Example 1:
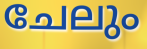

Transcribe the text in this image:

ചേലും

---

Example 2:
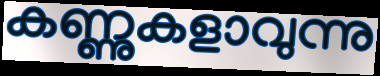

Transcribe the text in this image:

കണ്ണുകളാവുന്നു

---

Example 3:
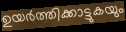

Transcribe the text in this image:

ഉയർത്തിക്കാട്ടുകയും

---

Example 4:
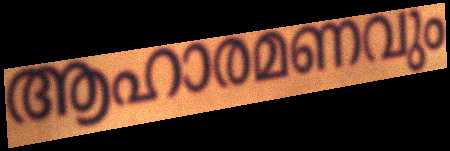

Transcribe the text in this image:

ആഹാരമണവും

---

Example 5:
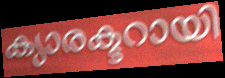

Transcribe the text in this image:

ക്യാരക്ടറായി